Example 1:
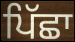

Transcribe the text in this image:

ਪਿੱਛਾ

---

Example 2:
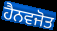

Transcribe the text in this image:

ਹੈਨਵਜੋਤ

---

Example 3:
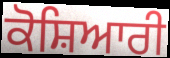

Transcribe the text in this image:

ਕੋਸ਼ਿਆਰੀ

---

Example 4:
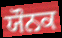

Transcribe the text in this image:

ਯੌਨਕ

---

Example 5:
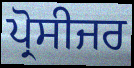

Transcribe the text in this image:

ਪ੍ਰੋਸੀਜਰ